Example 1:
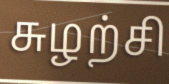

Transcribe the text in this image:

சுழற்சி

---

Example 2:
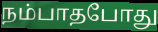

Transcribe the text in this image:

நம்பாதபோது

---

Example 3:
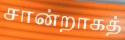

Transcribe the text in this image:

சான்றாகத்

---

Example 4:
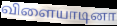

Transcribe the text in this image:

விளையாடினா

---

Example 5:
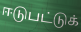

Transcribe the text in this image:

ஈடுபட்டுக்